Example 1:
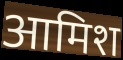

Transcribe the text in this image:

आमिश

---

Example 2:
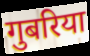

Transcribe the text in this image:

गुबरिया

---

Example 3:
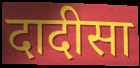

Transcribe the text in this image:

दादीसा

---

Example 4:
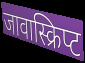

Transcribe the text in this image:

जावास्क्रिप्ट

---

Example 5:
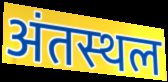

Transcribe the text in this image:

अंतस्थल